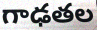
గాఢతల